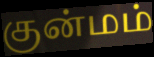
குன்மம்